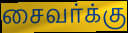
சைவர்க்கு